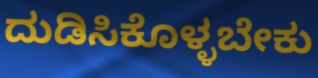
ದುಡಿಸಿಕೊಳ್ಳಬೇಕು